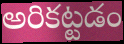
అరికట్టడం